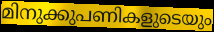
മിനുക്കുപണികളുടെയും